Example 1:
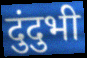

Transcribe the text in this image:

दुंदुभी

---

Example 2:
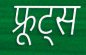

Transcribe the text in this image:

फ्रूट्स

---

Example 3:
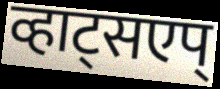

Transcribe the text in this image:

व्हाट्सएप्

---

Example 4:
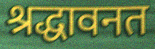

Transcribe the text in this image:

श्रद्धावनत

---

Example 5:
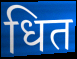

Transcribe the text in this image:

धित